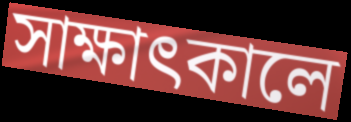
সাক্ষাৎকালে